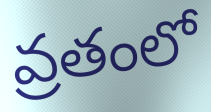
వ్రతంలో